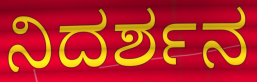
ನಿದರ್ಶನ